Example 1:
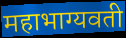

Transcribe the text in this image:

महाभाग्यवती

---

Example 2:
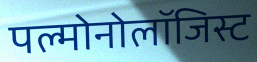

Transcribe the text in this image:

पल्मोनोलॉजिस्ट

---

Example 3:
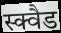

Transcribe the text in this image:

स्क्वैड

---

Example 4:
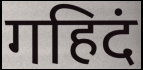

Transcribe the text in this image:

गहिदं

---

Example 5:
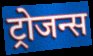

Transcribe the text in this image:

ट्रोजन्स